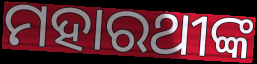
ମହାରଥୀଙ୍କ